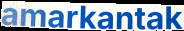
amarkantak